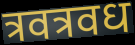
त्रवत्रवध